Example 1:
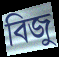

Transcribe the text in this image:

বিজু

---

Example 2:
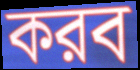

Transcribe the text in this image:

করব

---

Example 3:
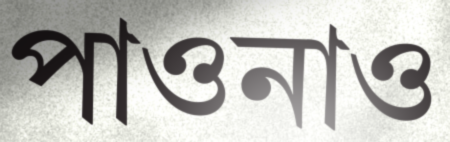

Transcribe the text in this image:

পাওনাও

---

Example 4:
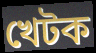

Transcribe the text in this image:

খেটক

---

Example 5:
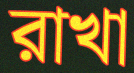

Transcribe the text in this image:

রাখা